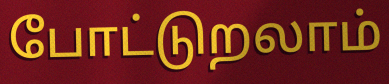
போட்டுறலாம்